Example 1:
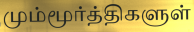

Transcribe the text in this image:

மும்மூர்த்திகளுள்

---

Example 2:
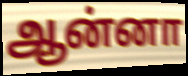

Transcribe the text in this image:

ஆன்னா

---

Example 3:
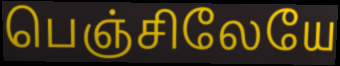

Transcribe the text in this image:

பெஞ்சிலேயே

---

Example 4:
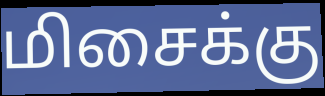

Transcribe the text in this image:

மிசைக்கு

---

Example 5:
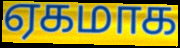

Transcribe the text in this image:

ஏகமாக